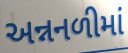
અન્નનળીમાં